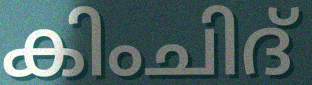
കിംചിദ്